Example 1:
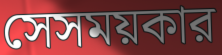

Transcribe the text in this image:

সেসময়কার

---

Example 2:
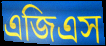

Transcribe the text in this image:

এজিএস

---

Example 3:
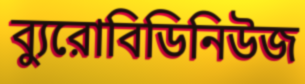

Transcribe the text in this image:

ব্যুরোবিডিনিউজ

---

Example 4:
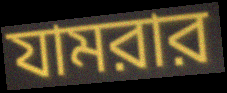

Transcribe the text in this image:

যামরার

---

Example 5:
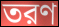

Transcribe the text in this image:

তরণ